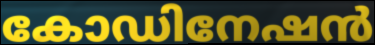
കോഡിനേഷൻ